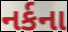
નર્કના